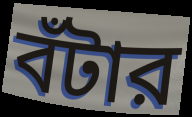
বঁটার